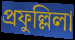
প্রফুল্লিলা